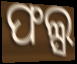
ଫଲ୍ସ